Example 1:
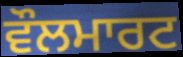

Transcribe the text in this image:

ਵੌਲਮਾਰਟ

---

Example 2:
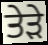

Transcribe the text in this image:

ਤੇੜੇ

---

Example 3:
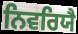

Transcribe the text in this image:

ਨਿਵਰਿਯੈ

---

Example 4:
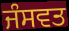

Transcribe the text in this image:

ਜੰਸਵਤ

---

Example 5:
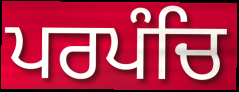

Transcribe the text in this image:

ਪਰਪੰਚਿ